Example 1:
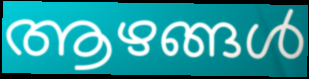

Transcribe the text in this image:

ആഴങ്ങൾ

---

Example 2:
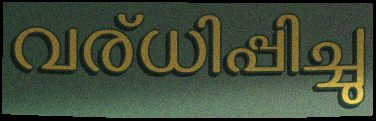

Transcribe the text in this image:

വര്ധിപ്പിച്ചു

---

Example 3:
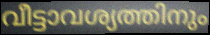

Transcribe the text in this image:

വീട്ടാവശ്യത്തിനും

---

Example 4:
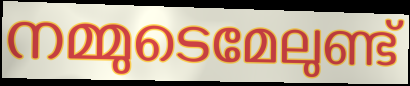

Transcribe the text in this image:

നമ്മുടെമേലുണ്ട്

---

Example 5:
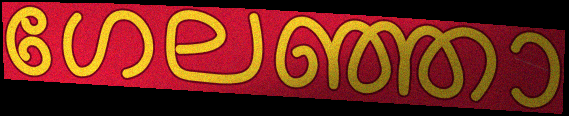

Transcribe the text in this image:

ഗേലഞ്ഞാ